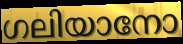
ഗലിയാനോ